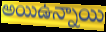
అయిఉన్నాయి